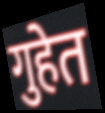
गुहेत